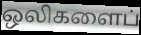
ஒலிகளைப்